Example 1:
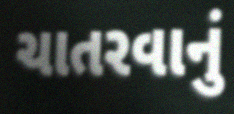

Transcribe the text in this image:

ચાતરવાનું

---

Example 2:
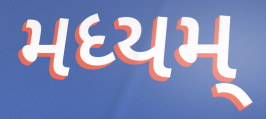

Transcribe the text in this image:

મધ્યમ્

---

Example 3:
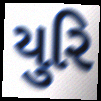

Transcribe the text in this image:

યુરિ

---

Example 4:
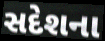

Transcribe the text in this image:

સદેશના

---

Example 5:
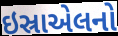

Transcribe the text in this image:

ઇસ્રાએલનો